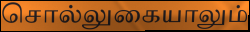
சொல்லுகையாலும்